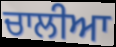
ਚਾਲੀਆ